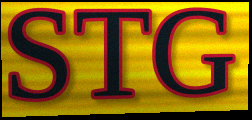
STG